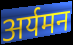
अर्यमन